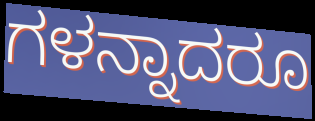
ಗಳನ್ನಾದರೂ